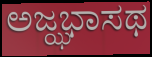
ಅಜ್ಝಭಾಸಥ